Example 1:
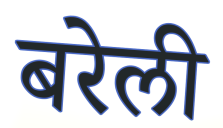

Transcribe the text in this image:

बरेली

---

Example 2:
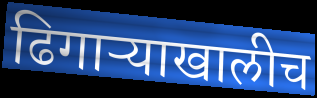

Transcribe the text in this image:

ढिगाऱ्याखालीच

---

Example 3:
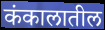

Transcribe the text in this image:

कंकालातील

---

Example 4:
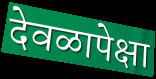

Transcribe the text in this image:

देवळापेक्षा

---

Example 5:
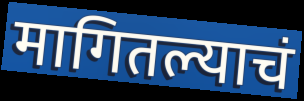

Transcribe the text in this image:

मागितल्याचं